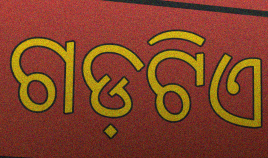
ଗଡ଼ଟିଏ